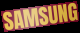
SAMSUNG